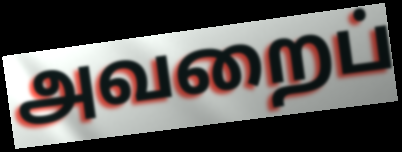
அவறைப்